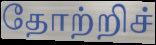
தோற்றிச்